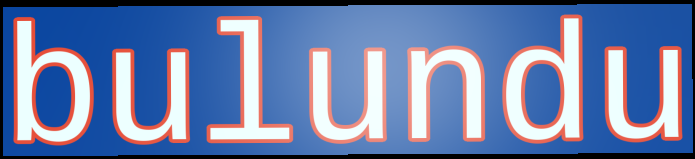
bulundu